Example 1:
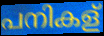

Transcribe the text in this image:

പനികള്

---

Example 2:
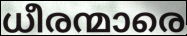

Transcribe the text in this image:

ധീരന്മാരെ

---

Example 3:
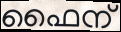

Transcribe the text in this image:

ഫൈന്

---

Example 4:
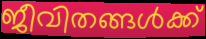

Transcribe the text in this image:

ജീവിതങ്ങൾക്ക്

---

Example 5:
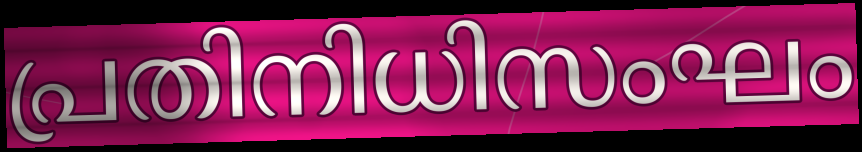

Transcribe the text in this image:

പ്രതിനിധിസംഘം